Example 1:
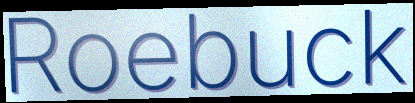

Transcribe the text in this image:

Roebuck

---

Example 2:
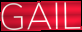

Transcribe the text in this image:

GAIL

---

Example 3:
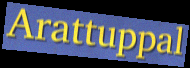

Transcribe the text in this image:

Arattuppal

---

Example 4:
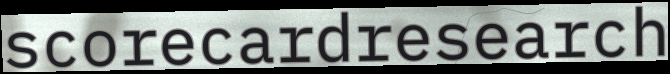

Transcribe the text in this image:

scorecardresearch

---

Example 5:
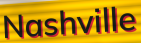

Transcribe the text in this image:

Nashville